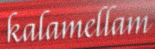
kalamellam